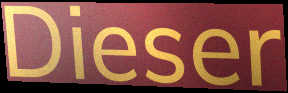
Dieser